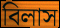
বিলাস